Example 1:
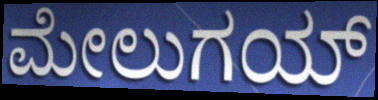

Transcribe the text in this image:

ಮೇಲುಗಯ್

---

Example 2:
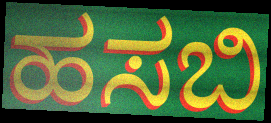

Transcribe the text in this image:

ಹಸಬಿ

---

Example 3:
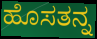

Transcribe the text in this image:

ಹೊಸತನ್ನ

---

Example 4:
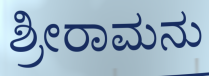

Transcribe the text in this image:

ಶ್ರೀರಾಮನು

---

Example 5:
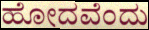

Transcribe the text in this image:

ಹೋದವೆಂದು